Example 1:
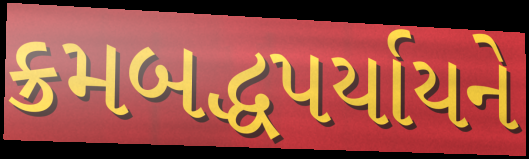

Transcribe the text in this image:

ક્રમબદ્ધપર્યાયને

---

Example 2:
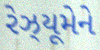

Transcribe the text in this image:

રેઝ્યૂમેને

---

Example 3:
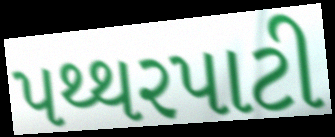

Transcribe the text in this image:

પથ્થરપાટી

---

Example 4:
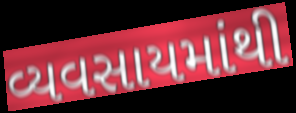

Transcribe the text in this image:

વ્યવસાયમાંથી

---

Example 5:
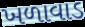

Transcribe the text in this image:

ખળાવાડ